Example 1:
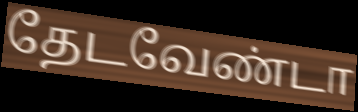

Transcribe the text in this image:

தேடவேண்டா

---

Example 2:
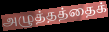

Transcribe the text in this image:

அழுத்தத்தைக்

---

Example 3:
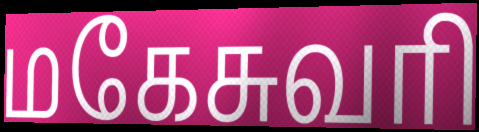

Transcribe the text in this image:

மகேசுவரி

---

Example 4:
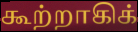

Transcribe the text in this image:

கூற்றாகிக்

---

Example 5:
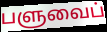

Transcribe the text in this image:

பளுவைப்